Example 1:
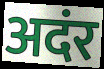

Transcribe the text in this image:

अदंर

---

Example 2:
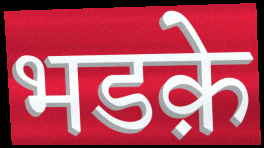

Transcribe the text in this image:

भडक़े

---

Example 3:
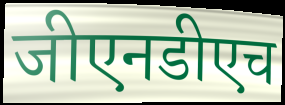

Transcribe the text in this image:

जीएनडीएच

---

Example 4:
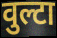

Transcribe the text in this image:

वुल्टा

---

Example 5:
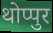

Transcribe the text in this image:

थोप्पुर